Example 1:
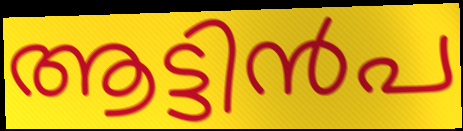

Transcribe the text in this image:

ആട്ടിൻപ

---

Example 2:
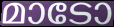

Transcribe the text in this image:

മാടോ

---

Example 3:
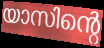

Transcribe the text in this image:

യാസിന്റെ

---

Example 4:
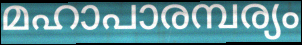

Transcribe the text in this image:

മഹാപാരമ്പര്യം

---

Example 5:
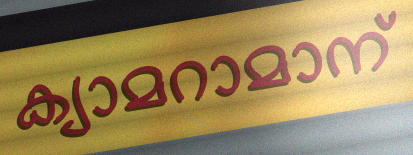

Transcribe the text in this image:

ക്യാമറാമാന്